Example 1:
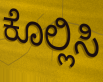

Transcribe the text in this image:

ಕೊಲ್ಲಿಸಿ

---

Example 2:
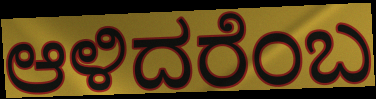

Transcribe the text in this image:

ಆಳಿದರೆಂಬ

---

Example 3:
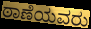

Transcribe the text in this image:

ಠಾಣೆಯವರು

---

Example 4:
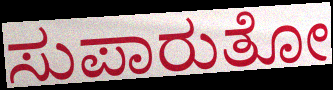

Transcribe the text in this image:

ಸುಪಾರುತೋ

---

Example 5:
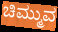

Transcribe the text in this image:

ಚಿಮ್ಮುವ